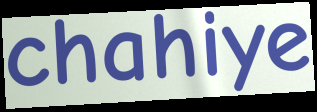
chahiye